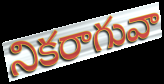
నికరాగువా